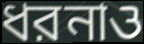
ধরনাও